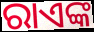
ରାଏଙ୍କ